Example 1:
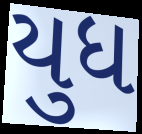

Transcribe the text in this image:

યુધ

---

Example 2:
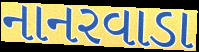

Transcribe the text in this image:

નાનરવાડા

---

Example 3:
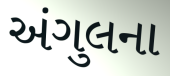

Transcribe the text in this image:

અંગુલના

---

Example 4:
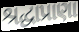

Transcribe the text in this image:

શ્રદ્ધાપ્રાણા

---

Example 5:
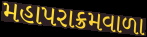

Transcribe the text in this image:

મહાપરાક્રમવાળા